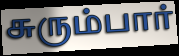
சுரும்பார்